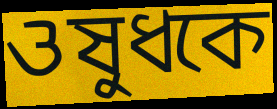
ওষুধকে